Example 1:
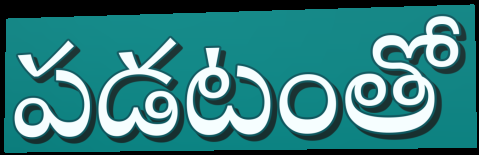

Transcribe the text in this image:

పడటంతో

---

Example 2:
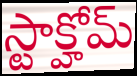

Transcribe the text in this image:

స్టాక్హోమ్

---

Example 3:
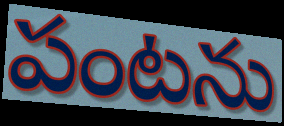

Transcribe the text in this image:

పంటను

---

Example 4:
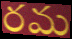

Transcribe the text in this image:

రమ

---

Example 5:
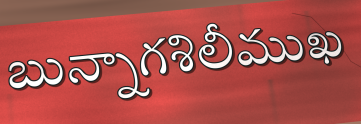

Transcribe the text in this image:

బున్నాగశిలీముఖ